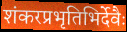
शंकरप्रभृतिभिर्देवैः